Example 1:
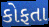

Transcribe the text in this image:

કોફતા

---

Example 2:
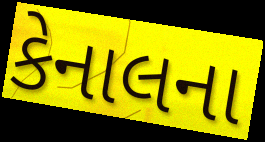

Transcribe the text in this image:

કેનાલના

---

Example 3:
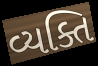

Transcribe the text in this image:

વ્યક્તિ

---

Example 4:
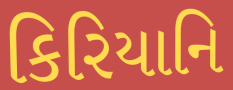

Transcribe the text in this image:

કિરિયાનિ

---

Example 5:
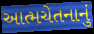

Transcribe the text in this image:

આત્મચેતનાનું